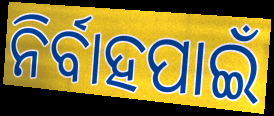
ନିର୍ବାହପାଇଁ